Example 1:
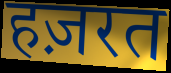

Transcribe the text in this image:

हज़रत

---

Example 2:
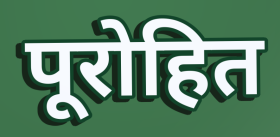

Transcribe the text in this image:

पूरोहित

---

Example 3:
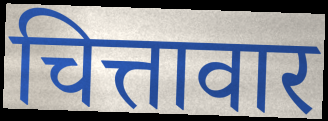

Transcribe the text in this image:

चित्तावार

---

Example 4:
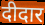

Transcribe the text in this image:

दीदार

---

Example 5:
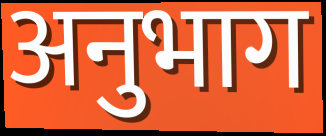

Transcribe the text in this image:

अनुभाग